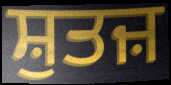
ਸ਼ੁਤਜ਼